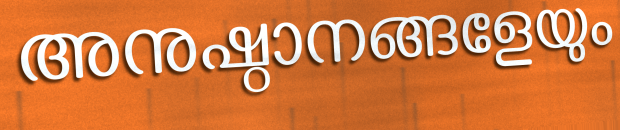
അനുഷ്ഠാനങ്ങളേയും